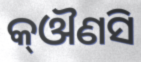
କ୍ଔଣସି